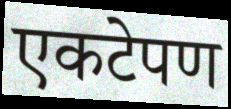
एकटेपण